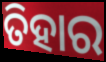
ତିହାର